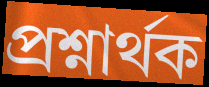
প্ৰশ্নাৰ্থক